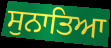
ਸੁਨਾਤਿਆ